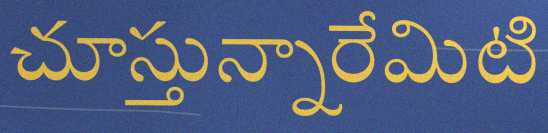
చూస్తున్నారేమిటి